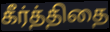
கீர்த்திதை